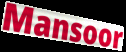
Mansoor